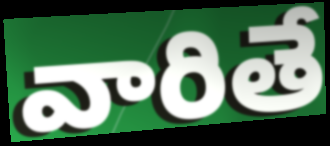
వారితే